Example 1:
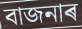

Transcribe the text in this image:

বাজনাৰ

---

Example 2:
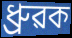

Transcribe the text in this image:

ধ্ৰুৱক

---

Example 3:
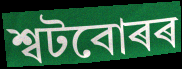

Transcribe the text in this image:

শ্বটবোৰৰ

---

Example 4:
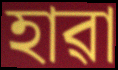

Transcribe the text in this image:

হাৱা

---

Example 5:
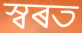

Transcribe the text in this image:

স্বৰত